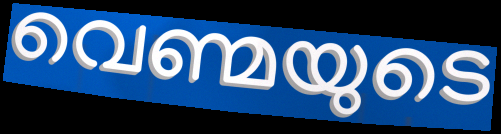
വെണ്മയുടെ